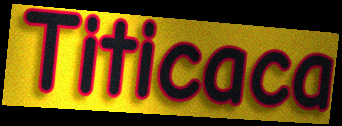
Titicaca